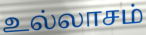
உல்லாசம்